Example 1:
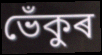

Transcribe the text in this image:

ভেঁকুৰ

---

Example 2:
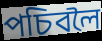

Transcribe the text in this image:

পচিবলৈ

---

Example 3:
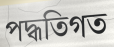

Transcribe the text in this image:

পদ্ধতিগত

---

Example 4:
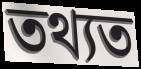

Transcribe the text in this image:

তথ্যত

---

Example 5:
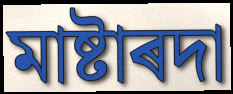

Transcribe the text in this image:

মাষ্টাৰদা